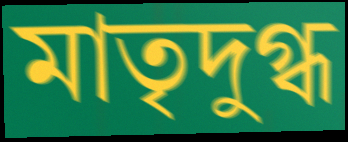
মাতৃদুগ্ধ